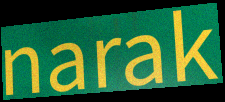
narak